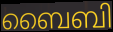
ബൈബി